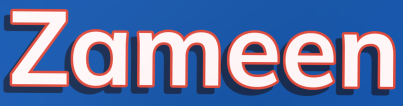
Zameen